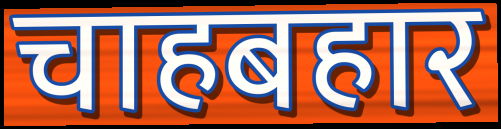
चाहबहार